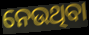
ନେଉଥିବା